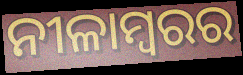
ନୀଳାମ୍ବରର